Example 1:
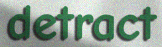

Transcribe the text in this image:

detract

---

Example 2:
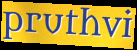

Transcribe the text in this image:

pruthvi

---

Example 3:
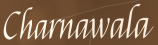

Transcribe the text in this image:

Charnawala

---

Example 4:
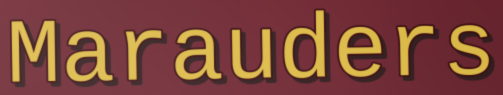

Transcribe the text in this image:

Marauders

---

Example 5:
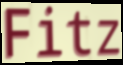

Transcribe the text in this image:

Fitz